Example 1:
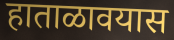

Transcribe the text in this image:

हाताळावयास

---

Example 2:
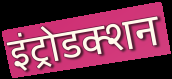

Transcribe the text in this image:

इंट्रोडक्शन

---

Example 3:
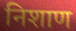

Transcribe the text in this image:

निशाण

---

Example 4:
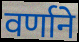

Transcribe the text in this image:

वर्णाने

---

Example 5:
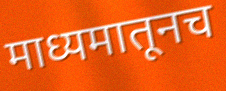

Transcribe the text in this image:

माध्यमातूनच